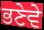
ਭਣੇਵੇ